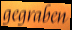
gegraben